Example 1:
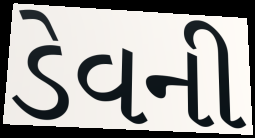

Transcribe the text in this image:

ડેવની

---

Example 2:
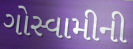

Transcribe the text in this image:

ગોસ્વામીની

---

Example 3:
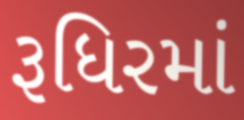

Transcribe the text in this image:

રૂધિરમાં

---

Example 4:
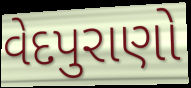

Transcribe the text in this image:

વેદપુરાણો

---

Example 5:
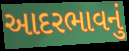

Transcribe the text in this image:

આદરભાવનું